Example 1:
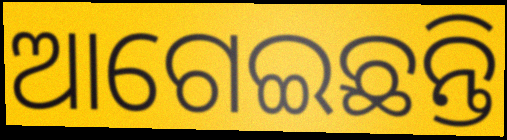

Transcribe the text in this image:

ଆଗେଇଛନ୍ତି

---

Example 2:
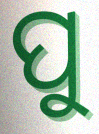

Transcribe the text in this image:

ପୁ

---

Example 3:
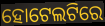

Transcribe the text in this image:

ହୋଟେଲଟିରେ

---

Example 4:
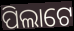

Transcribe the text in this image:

ପିଲାଟେ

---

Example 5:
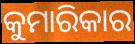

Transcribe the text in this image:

କୁମାରିକାର